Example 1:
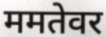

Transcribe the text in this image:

ममतेवर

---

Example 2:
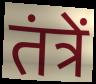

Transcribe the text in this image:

तंत्रें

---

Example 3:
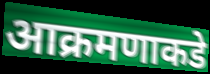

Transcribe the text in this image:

आक्रमणाकडे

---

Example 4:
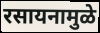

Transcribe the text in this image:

रसायनामुळे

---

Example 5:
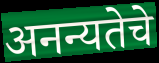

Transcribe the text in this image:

अनन्यतेचे